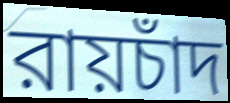
রায়চাঁদ